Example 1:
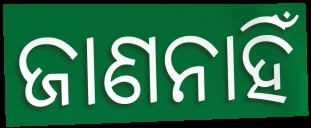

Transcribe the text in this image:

ଜାଣନାହିଁ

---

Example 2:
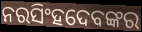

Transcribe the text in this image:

ନରସିଂହଦେବଙ୍କର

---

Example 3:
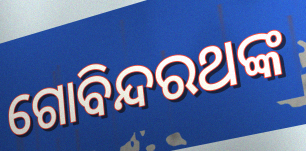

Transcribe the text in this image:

ଗୋବିନ୍ଦରଥଙ୍କ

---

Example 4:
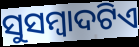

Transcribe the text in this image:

ସୁସମ୍ବାଦଟିଏ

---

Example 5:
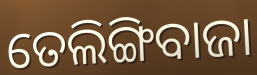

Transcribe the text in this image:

ତେଲିଙ୍ଗିବାଜା